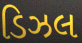
ડિઝલ